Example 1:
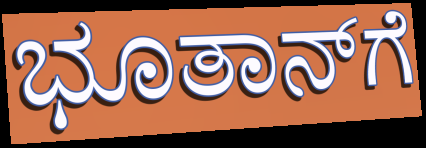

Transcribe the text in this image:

ಭೂತಾನ್‌ಗೆ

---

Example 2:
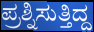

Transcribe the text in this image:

ಪ್ರಶ್ನಿಸುತ್ತಿದ್ದ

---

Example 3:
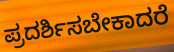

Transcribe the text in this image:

ಪ್ರದರ್ಶಿಸಬೇಕಾದರೆ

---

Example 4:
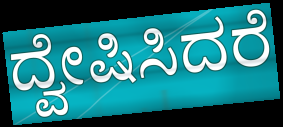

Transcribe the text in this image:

ದ್ವೇಷಿಸಿದರೆ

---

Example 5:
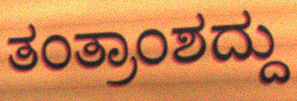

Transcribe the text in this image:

ತಂತ್ರಾಂಶದ್ದು